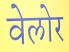
वेलोर